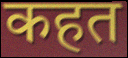
कहत